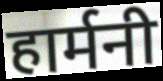
हार्मनी